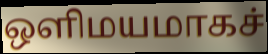
ஒளிமயமாகச்